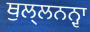
ਥੁਲ੍ਲਨਨ੍ਦਾ